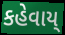
કહેવાય્